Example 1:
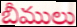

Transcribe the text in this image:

బీములు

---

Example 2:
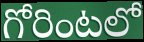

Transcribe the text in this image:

గోరింటలో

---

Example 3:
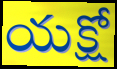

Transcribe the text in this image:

యక్షో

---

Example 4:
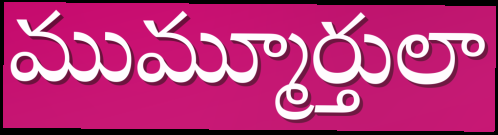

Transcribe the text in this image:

ముమ్మూర్తులా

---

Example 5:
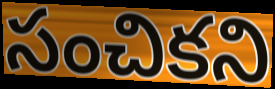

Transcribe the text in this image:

సంచికని